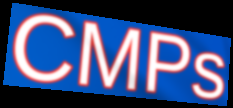
CMPs